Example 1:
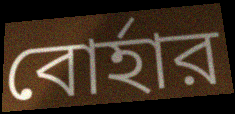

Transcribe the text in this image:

বোর্হার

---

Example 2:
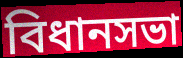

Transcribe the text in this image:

বিধানসভা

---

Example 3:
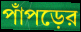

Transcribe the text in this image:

পাঁপড়ের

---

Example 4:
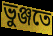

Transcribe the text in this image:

ভুঞ্জতে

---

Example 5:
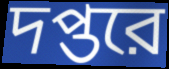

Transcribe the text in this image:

দপ্তরে